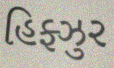
હિફ્ઝુર